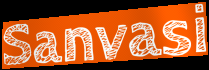
Sanvasi